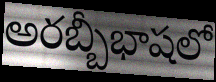
అరబ్బీభాషలో